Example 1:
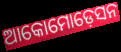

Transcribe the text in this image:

ଆକୋମୋଡ଼େସନ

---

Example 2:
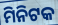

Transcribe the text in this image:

ମିନିଟକ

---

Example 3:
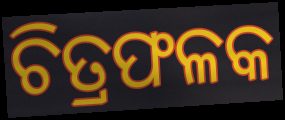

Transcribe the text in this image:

ଚିତ୍ରଫଳକ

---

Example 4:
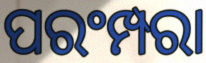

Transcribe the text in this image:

ପରଂମ୍ପରା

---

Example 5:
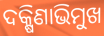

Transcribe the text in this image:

ଦକ୍ଷିଣାଭିମୁଖ